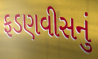
ફડણવીસનું